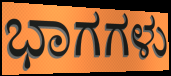
ಭಾಗಗಳು